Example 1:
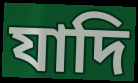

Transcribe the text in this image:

যাদি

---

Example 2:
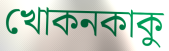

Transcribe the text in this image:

খোকনকাকু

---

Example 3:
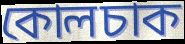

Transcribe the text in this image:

কোলচাক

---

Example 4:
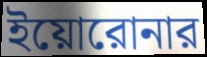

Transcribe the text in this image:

ইয়োরোনার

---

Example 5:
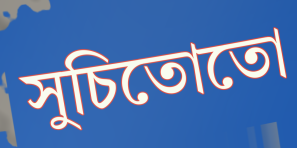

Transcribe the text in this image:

সুচিতোতো